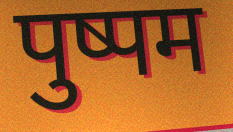
पुष्पम